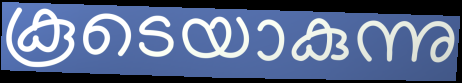
കൂടെയാകുന്നു